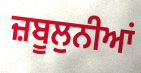
ਜ਼ਬੂਲੁਨੀਆਂ